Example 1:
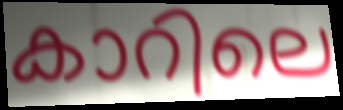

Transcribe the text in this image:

കാറിലെ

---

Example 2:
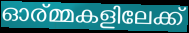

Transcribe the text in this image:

ഓര്മ്മകളിലേക്ക്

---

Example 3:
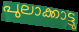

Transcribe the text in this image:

പുലാക്കാട്ടു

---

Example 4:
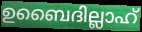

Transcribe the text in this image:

ഉബൈദില്ലാഹ്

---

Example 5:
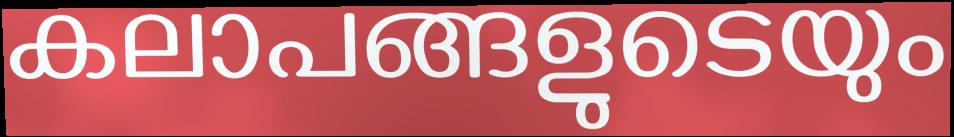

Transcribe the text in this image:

കലാപങ്ങളുടെയും